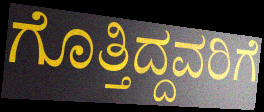
ಗೊತ್ತಿದ್ದವರಿಗೆ